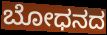
ಬೋಧನದ